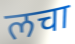
लचा